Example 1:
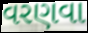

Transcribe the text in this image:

વરણવા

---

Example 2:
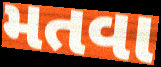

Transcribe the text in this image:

મતવા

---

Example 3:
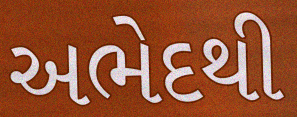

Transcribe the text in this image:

અભેદથી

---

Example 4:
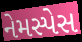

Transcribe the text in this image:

નેમસ્પેસ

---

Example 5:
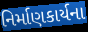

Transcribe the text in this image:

નિર્માણકાર્યના